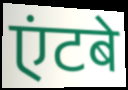
एंटबे